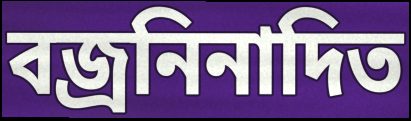
বজ্রনিনাদিত